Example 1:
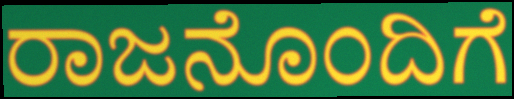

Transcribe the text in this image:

ರಾಜನೊಂದಿಗೆ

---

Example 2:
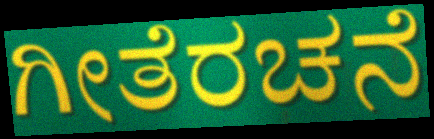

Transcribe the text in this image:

ಗೀತೆರಚನೆ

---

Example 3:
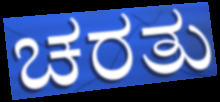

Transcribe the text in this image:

ಚರತು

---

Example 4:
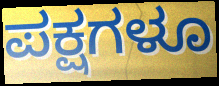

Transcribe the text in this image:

ಪಕ್ಷಗಳೂ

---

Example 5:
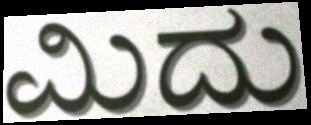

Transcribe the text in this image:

ಮಿದು